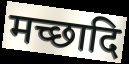
मच्छादि